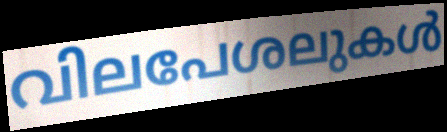
വിലപേശലുകൾ